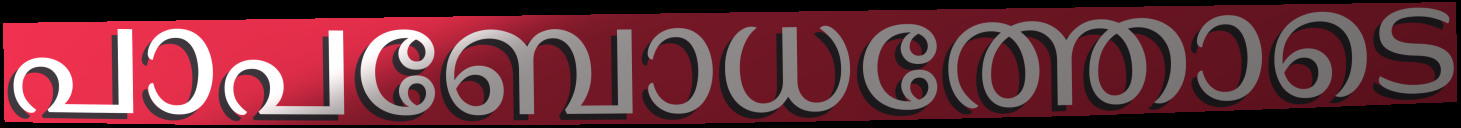
പാപബോധത്തോടെ